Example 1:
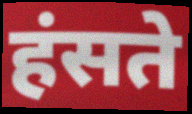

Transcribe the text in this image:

हंसते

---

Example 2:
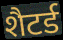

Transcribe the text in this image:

शैटर्ड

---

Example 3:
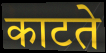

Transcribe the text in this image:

काटते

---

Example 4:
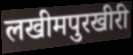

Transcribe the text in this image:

लखीमपुरखीरी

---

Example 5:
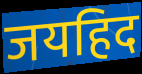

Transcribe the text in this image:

जयहिद